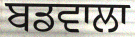
ਬਡਵਾਲਾ